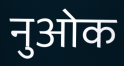
नुओक